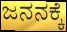
ಜನನಕ್ಕೆ